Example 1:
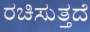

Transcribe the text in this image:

ರಚಿಸುತ್ತದೆ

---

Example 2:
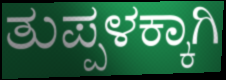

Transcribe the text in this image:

ತುಪ್ಪಳಕ್ಕಾಗಿ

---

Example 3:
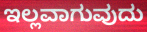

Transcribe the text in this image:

ಇಲ್ಲವಾಗುವುದು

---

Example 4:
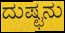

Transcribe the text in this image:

ದುಷ್ಟನು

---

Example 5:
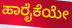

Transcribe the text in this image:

ಹಾರೈಕೆಯೇ